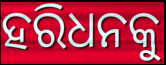
ହରିଧନକୁ